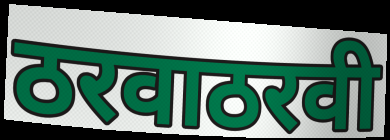
ठरवाठरवी